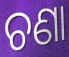
ଚଣା